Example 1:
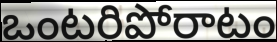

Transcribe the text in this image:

ఒంటరిపోరాటం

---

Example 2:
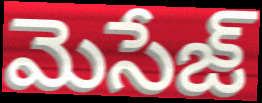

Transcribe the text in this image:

మెసేజ్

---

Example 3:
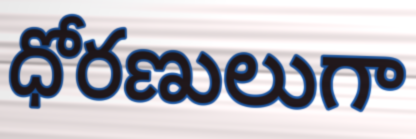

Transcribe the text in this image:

ధోరణులుగా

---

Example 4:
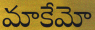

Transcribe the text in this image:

మాకేమో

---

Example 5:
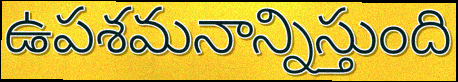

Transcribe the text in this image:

ఉపశమనాన్నిస్తుంది